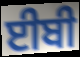
ਈਬੀ